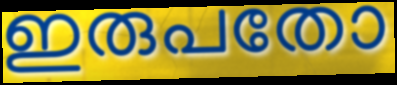
ഇരുപതോ